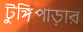
টুঙ্গিপাড়ার